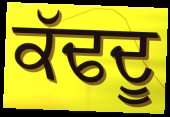
ਕੱਢਦੂ